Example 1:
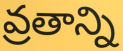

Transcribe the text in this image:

వ్రతాన్ని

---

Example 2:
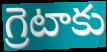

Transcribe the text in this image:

గ్రెటాకు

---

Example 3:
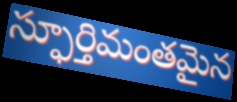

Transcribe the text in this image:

స్ఫూర్తిమంతమైన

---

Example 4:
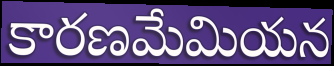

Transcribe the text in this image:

కారణమేమియన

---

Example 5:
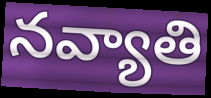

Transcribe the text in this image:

నవ్యాతి